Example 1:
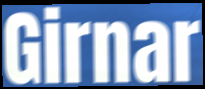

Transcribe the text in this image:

Girnar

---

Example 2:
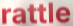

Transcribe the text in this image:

rattle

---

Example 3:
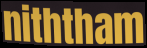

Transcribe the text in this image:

niththam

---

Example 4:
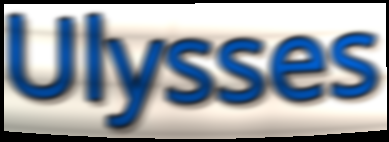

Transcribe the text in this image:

Ulysses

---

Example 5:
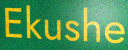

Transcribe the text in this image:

Ekushe